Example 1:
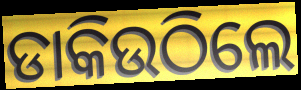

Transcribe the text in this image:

ଡାକିଉଠିଲେ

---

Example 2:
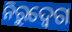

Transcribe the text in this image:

ନିରୁଦ୍ବେଗ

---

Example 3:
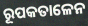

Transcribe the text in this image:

ରୂପକତାଳେନ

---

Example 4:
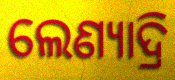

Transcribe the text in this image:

ଲେଣ୍ୟାଦ୍ରି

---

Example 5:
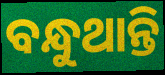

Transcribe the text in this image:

ବନ୍ଧୁଥାନ୍ତି